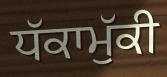
ਧੱਕਾਮੁੱਕੀ